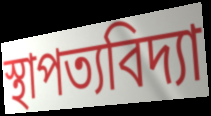
স্থাপত্যবিদ্যা